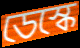
ডেস্কে